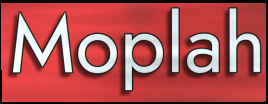
Moplah